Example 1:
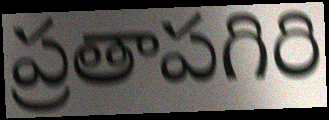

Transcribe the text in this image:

ప్రతాపగిరి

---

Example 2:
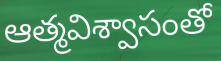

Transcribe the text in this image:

ఆత్మవిశ్వాసంతో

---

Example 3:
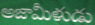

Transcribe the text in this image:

అజామీళుడు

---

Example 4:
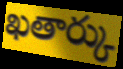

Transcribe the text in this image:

ఖతార్కు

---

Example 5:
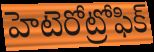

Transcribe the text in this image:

హెటెరోట్రోఫిక్